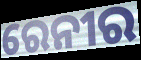
ରେନୀର